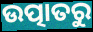
ଉତ୍ପାତରୁ